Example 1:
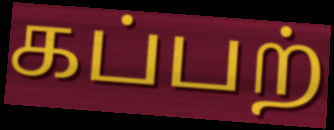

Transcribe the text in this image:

கப்பற்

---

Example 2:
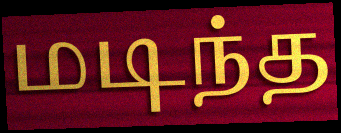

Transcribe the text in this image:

மடிந்த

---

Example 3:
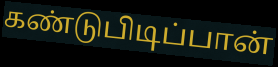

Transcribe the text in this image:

கண்டுபிடிப்பான்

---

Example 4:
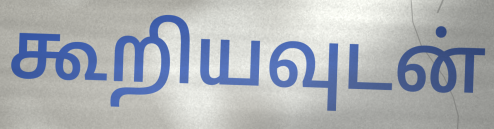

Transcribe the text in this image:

கூறியவுடன்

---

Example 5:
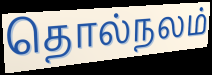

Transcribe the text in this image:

தொல்நலம்